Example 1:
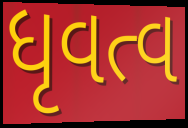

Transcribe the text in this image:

ધૃવત્વ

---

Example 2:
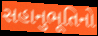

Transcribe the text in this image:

સહાનુભૂતિનો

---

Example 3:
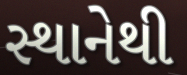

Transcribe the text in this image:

સ્થાનેથી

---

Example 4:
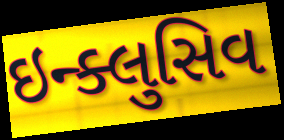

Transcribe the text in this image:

ઇન્ક્લુસિવ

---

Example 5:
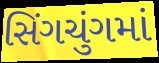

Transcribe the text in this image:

સિંગચુંગમાં